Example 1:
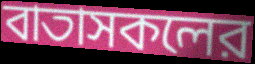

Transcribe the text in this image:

বাতাসকলের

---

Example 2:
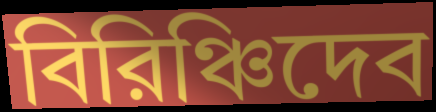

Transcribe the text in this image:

বিরিঞ্চিদেব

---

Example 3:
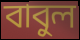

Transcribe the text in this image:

বাবুল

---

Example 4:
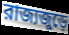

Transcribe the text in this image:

রাজ্যজুড়ে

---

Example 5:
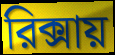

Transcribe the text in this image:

রিক্সায়